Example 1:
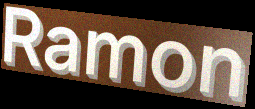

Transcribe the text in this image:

Ramon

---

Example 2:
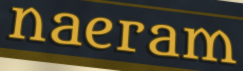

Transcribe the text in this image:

naeram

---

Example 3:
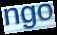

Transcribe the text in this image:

ngo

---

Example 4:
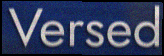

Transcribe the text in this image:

Versed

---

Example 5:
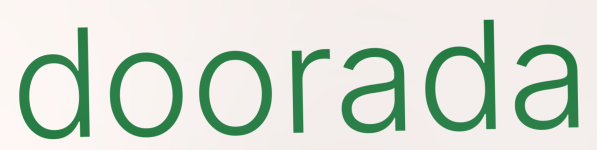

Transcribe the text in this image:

doorada